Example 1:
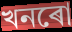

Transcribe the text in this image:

খনৰো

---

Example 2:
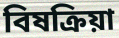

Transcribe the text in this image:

বিষক্ৰিয়া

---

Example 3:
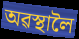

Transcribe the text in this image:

অৱস্থালৈ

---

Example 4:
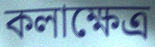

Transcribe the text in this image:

কলাক্ষেত্ৰ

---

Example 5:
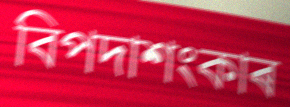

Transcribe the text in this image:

বিপদাশংকাৰ